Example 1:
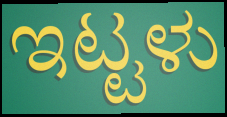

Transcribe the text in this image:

ಇಟ್ಟಳು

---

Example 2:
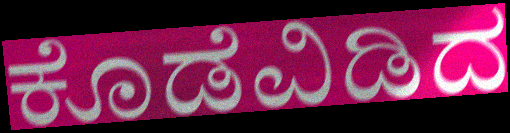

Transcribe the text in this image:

ಕೊಡೆವಿಡಿದ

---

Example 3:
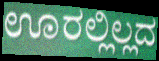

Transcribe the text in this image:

ಊರಲ್ಲಿಲ್ಲದ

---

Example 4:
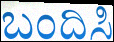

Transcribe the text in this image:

ಬಂದಿಸಿ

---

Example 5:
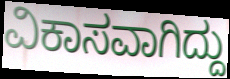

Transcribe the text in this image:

ವಿಕಾಸವಾಗಿದ್ದು